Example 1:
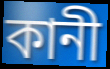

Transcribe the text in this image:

কানী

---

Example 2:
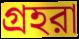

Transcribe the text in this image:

গ্রহরা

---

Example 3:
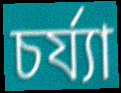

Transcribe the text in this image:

চর্য্যা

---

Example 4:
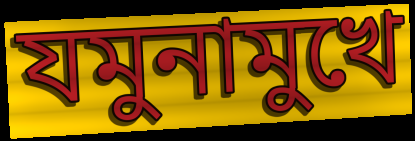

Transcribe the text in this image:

যমুনামুখে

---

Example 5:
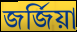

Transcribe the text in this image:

জর্জিয়া